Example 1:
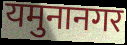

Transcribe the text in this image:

यमुनानगर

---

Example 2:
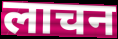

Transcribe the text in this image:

लाचन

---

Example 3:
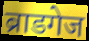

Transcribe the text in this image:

ब्राडगेज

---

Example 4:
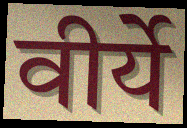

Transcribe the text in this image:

वीर्ये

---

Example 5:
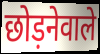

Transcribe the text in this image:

छोड़नेवाले